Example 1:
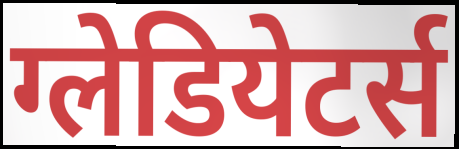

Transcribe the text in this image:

ग्लेडियेटर्स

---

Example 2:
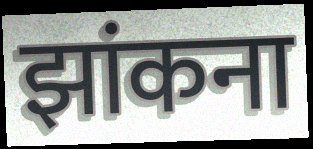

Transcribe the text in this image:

झांकना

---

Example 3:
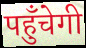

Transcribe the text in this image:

पहुँचेगी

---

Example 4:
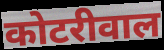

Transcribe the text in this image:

कोटरीवाल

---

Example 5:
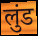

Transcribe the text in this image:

लुंड